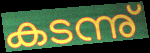
കടന്നു്